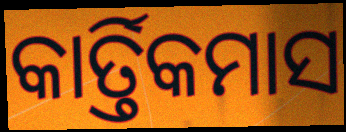
କାର୍ତ୍ତିକମାସ